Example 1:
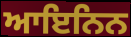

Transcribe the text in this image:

ਆਇਨਿਨ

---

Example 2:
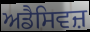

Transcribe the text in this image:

ਅਡੈਸਿਵਜ਼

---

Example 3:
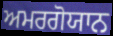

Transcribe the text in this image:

ਅਮਰਗੋਯਾਨ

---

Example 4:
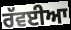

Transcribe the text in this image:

ਰੱਵਈਆ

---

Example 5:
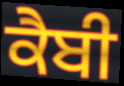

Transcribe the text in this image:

ਕੈਬੀ